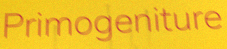
Primogeniture